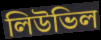
লিউভিল